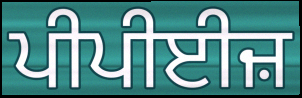
ਪੀਪੀਈਜ਼